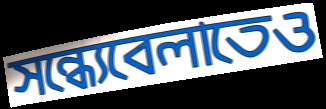
সন্ধ্যেবেলাতেও